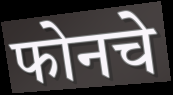
फोनचे